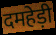
दमहेड़ी